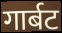
गार्बट